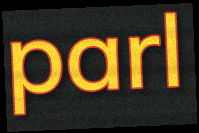
parl